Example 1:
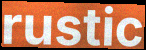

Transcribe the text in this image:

rustic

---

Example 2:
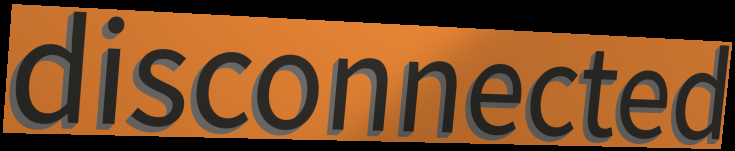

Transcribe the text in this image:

disconnected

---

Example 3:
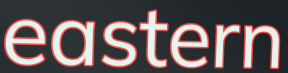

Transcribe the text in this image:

eastern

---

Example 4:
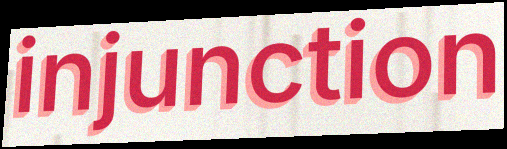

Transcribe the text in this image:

injunction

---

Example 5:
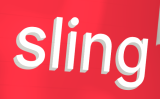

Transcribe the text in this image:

sling